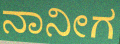
ನಾನೀಗ